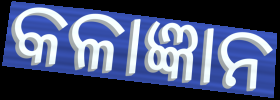
କଳାଜ୍ଞାନ